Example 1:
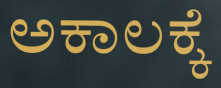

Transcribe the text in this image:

ಅಕಾಲಕ್ಕೆ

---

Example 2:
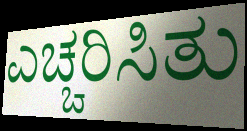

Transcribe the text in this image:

ಎಚ್ಚರಿಸಿತು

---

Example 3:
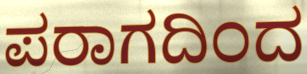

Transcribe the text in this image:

ಪರಾಗದಿಂದ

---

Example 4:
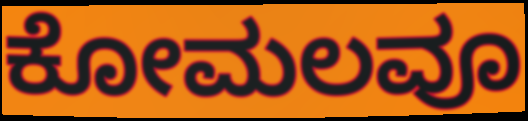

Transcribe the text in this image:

ಕೋಮಲವೂ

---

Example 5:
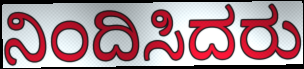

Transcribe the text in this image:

ನಿಂದಿಸಿದರು